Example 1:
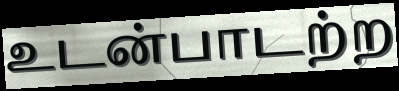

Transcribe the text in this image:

உடன்பாடற்ற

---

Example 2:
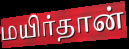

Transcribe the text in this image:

மயிர்தான்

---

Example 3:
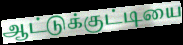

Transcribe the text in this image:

ஆட்டுக்குட்டியை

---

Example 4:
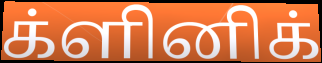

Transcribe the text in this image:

க்ளினிக்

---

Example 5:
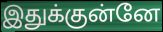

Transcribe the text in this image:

இதுக்குன்னே